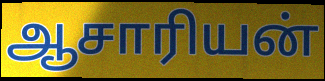
ஆசாரியன்